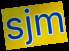
sjm